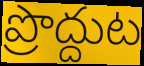
ప్రొద్దుట